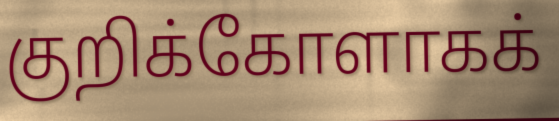
குறிக்கோளாகக்